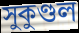
সুকুণ্ডল